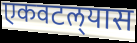
एकवटल्यास